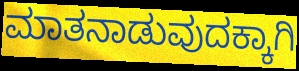
ಮಾತನಾಡುವುದಕ್ಕಾಗಿ